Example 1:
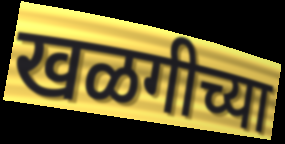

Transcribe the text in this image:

खळगीच्या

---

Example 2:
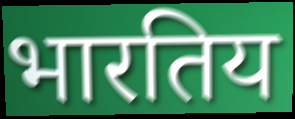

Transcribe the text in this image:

भारतिय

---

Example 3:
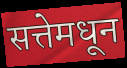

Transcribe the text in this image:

सत्तेमधून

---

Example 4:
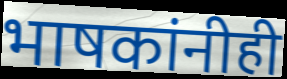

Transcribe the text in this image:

भाषकांनीही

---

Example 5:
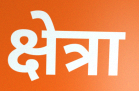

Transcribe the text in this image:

क्षेत्रा